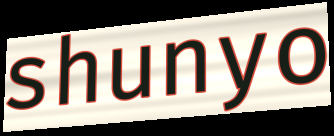
shunyo